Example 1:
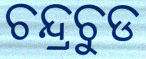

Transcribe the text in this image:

ଚନ୍ଦ୍ରଚୁଡ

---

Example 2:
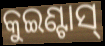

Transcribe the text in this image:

କୁଇଣ୍ଟାସ୍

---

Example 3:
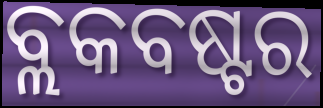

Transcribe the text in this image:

ବ୍ଲକବଷ୍ଟର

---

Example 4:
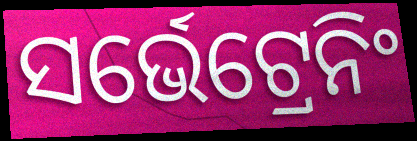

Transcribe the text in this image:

ସର୍ଭେଟ୍ରେନିଂ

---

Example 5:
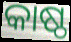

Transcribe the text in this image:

କାଷ୍ଠ